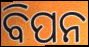
ବିପନ